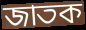
জাতক